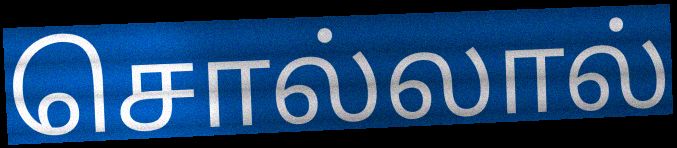
சொல்லால்